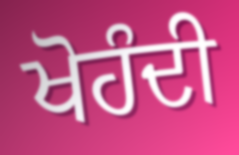
ਖੋਹੰਦੀ